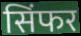
सिंफर